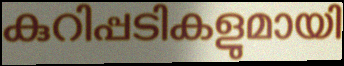
കുറിപ്പടികളുമായി